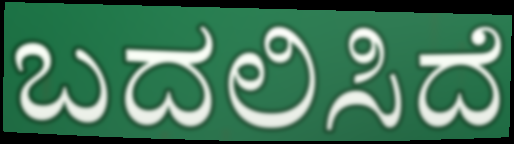
ಬದಲಿಸಿದೆ